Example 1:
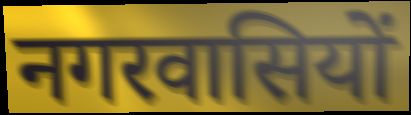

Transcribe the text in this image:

नगरवासियों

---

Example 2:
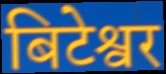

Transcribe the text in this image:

बिटेश्वर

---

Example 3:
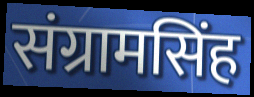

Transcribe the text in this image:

संग्रामसिंह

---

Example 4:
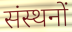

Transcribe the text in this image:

संस्थनों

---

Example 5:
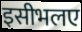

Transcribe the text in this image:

इसीभलए